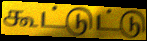
கூட்டுட்டு